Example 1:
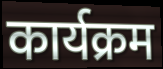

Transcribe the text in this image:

कार्यक्रम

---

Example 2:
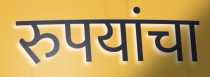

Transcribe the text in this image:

रुपयांचा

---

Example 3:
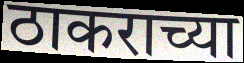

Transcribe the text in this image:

ठाकराच्या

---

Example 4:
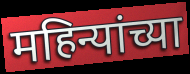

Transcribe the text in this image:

महिन्यांच्या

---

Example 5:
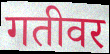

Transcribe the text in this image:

गतीवर